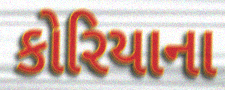
કોરિયાના